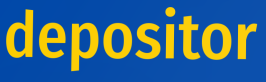
depositor